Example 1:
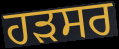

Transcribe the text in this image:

ਹੜਸਰ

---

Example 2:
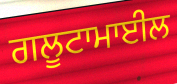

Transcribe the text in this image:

ਗਲੂਟਾਮਾਈਲ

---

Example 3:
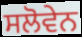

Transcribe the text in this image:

ਸਲੋਵੇਨ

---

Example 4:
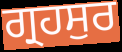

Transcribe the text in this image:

ਗ੍ਰਹਸੁਰ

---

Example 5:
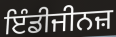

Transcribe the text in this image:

ਇੰਡੀਜੀਨਜ਼